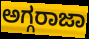
ಅಗ್ಗರಾಜಾ